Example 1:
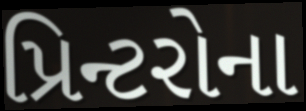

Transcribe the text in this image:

પ્રિન્ટરોના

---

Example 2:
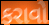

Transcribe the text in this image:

કરાવો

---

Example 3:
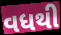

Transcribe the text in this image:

વધથી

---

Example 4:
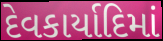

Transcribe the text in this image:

દેવકાર્યાદિમાં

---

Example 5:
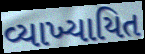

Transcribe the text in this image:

વ્યાખ્યાયિત